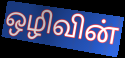
ஒழிவின்